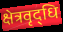
क्षेत्रवृद्धि